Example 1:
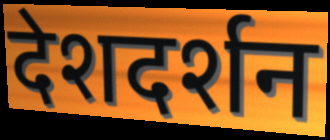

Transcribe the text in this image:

देशदर्शन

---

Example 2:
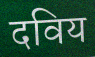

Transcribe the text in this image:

दविय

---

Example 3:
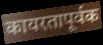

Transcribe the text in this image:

कायरतापूर्वक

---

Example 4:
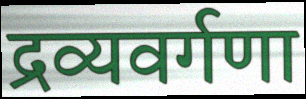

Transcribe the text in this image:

द्रव्यवर्गणा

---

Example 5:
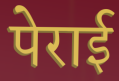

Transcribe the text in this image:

पेराई